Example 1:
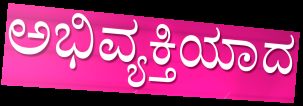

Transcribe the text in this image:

ಅಭಿವ್ಯಕ್ತಿಯಾದ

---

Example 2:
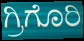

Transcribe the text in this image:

ಗ್ರಿಗೊರಿ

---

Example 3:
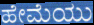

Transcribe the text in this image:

ಹೇಮೆಯು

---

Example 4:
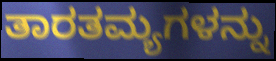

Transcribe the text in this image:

ತಾರತಮ್ಯಗಳನ್ನು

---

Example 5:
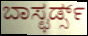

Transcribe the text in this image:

ಬಾಸ್ಟರ್ಡ್ಸ್